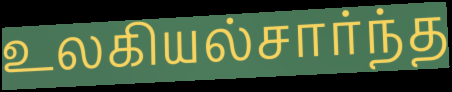
உலகியல்சார்ந்த